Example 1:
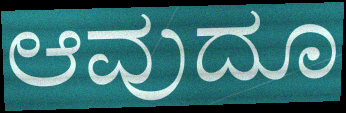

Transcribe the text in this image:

ಆವುದೂ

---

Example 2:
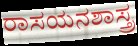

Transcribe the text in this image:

ರಾಸಯನಶಾಸ್ತ್ರ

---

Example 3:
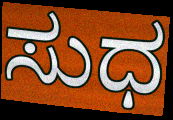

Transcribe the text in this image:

ಸುಧ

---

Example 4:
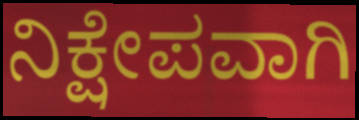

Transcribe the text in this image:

ನಿಕ್ಷೇಪವಾಗಿ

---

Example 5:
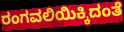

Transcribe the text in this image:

ರಂಗವಲಿಯಿಕ್ಕಿದಂತೆ